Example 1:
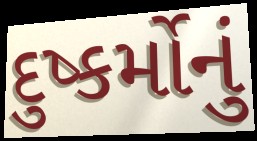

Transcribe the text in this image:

દુષ્કર્મોનું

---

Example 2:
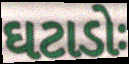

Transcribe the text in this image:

ઘટાડોઃ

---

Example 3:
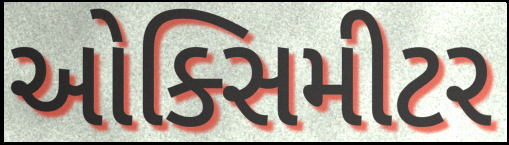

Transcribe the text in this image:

ઓક્સિમીટર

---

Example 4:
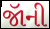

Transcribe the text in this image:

જૉની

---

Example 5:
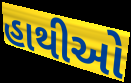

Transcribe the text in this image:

હાથીઓ